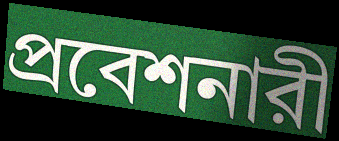
প্রবেশনারী